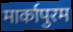
मार्कापुरम